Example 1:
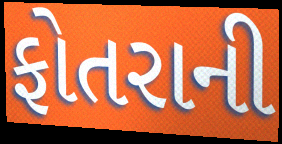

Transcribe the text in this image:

ફોતરાની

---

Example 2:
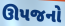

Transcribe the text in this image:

ઊપજનો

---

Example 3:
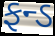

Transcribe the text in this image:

ફન્ડ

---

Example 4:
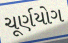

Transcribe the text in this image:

ચૂર્ણયોગ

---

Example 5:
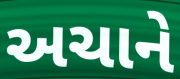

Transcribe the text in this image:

અચાને